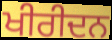
ਖੀਰੀਦਨ